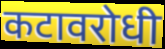
कटावरोधी